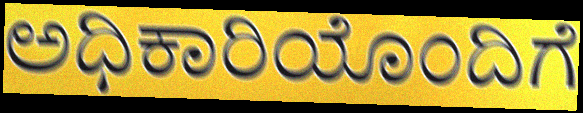
ಅಧಿಕಾರಿಯೊಂದಿಗೆ